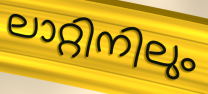
ലാറ്റിനിലും